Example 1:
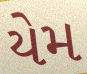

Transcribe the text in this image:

યેમ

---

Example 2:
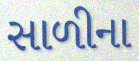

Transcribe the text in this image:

સાળીના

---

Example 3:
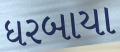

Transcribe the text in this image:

ધરબાયા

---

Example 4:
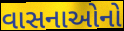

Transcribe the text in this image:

વાસનાઓનો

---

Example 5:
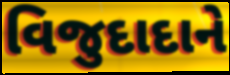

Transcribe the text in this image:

વિજુદાદાને